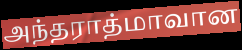
அந்தராத்மாவான